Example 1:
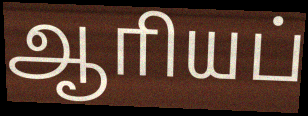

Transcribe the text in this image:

ஆரியப்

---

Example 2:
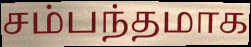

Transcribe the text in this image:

சம்பந்தமாக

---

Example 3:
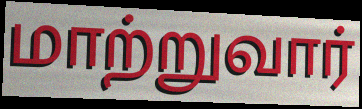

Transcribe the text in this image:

மாற்றுவார்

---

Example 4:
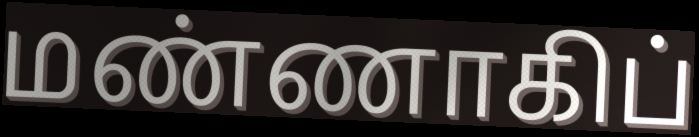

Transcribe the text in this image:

மண்ணாகிப்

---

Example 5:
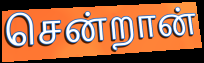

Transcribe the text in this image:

சென்றான்